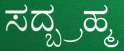
ಸದ್ಬ್ರಹ್ಮ